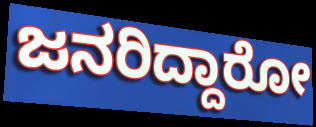
ಜನರಿದ್ದಾರೋ